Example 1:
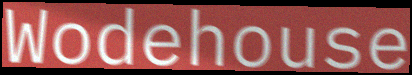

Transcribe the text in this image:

Wodehouse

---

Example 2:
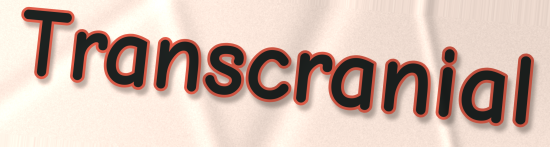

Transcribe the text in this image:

Transcranial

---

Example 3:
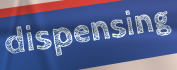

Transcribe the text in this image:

dispensing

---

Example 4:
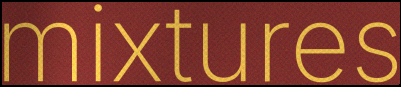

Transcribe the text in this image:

mixtures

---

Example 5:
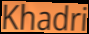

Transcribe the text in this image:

Khadri